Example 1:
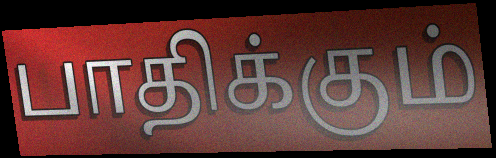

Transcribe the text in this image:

பாதிக்கும்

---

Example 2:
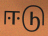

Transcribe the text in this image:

ஈடு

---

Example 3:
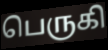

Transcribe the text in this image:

பெருகி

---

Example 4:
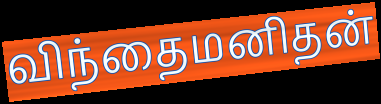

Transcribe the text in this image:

விந்தைமனிதன்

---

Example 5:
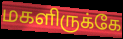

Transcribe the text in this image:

மகளிருக்கே